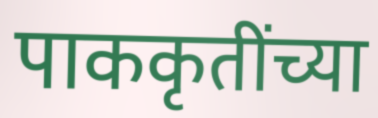
पाककृतींच्या